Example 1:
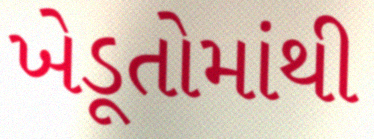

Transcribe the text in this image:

ખેડૂતોમાંથી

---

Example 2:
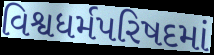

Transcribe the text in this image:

વિશ્વધર્મપરિષદમાં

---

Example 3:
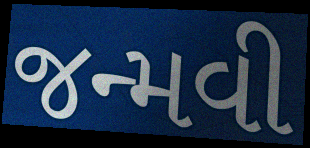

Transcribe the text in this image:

જન્મવી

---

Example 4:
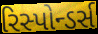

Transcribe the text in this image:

રિસ્પોન્ડર્સ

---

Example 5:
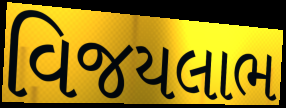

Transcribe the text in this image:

વિજયલાભ